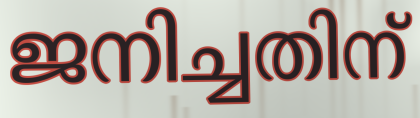
ജനിച്ചതിന്